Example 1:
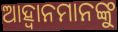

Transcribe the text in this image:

ଆହ୍ୱାନମାନଙ୍କୁ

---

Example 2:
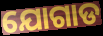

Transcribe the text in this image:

ଯୋଗାଡ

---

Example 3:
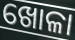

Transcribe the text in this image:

ଖୋଳା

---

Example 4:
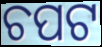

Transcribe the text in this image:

ଚପଟ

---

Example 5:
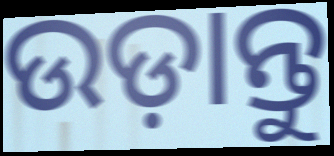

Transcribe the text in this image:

ଉଡ଼ାନ୍ତୁ